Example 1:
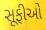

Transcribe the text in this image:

સૂફીઓ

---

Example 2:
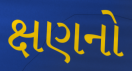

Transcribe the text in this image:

ક્ષણનો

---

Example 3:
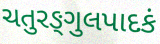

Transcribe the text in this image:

ચતુરઙ્ગુલપાદકં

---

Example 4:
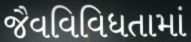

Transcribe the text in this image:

જૈવવિવિધતામાં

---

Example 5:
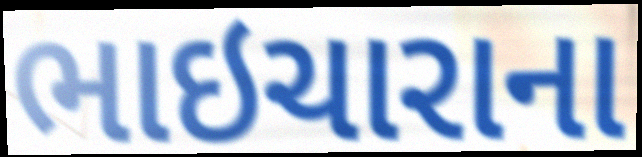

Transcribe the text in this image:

ભાઇચારાના